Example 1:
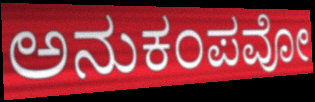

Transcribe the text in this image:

ಅನುಕಂಪವೋ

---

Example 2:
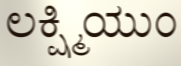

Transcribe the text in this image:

ಲಕ್ಷ್ಮಿಯುಂ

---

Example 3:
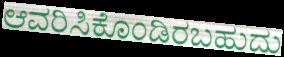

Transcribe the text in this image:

ಆವರಿಸಿಕೊಂಡಿರಬಹುದು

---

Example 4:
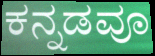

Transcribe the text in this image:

ಕನ್ನಡವೂ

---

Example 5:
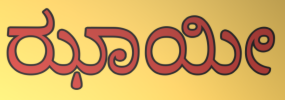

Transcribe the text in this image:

ಝಾಯೀ